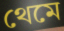
থেমে